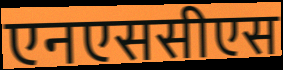
एनएससीएस